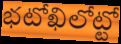
భటోఖిలోట్టో